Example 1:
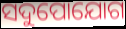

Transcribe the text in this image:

ସଦୁପୋଯୋଗ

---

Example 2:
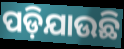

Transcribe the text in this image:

ପଡ଼ିଯାଉଛି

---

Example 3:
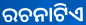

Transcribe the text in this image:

ରଚନାଟିଏ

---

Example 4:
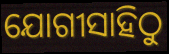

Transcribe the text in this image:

ଯୋଗୀସାହିଠୁ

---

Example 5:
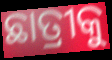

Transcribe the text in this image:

ଛାତ୍ରୀକୁ